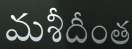
మశీదీంత